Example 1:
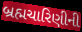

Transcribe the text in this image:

બ્રહ્મચારિણીની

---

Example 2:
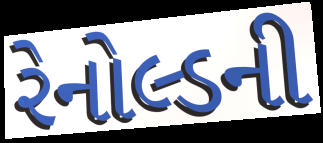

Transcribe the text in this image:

રેનોલ્ડની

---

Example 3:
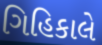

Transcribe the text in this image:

ગિહિકાલે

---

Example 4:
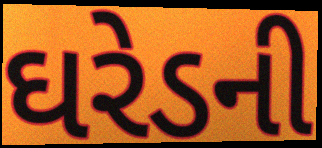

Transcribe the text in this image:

ઘરેડની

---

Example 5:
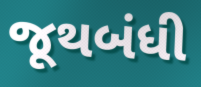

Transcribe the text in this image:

જૂથબંધી